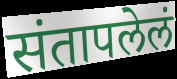
संतापलेलं